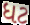
ધટ